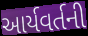
આર્યવર્તની